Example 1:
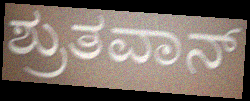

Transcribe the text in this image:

ಶ್ರುತವಾನ್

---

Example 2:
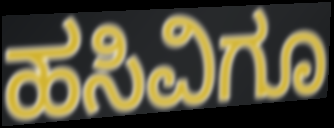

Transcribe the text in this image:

ಹಸಿವಿಗೂ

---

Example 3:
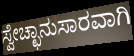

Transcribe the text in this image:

ಸ್ವೇಚ್ಛಾನುಸಾರವಾಗಿ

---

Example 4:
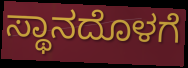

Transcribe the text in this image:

ಸ್ಥಾನದೊಳಗೆ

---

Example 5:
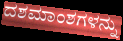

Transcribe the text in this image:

ದಶಮಾಂಶಗಳನ್ನು